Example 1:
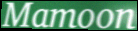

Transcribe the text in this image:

Mamoon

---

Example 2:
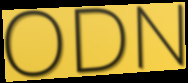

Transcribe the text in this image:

ODN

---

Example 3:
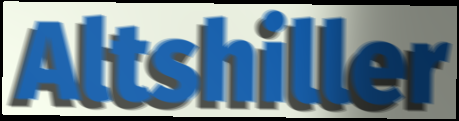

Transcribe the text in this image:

Altshiller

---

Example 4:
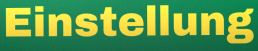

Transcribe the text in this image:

Einstellung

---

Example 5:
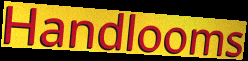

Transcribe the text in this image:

Handlooms